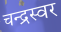
चन्द्रस्वर